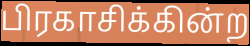
பிரகாசிக்கின்ற